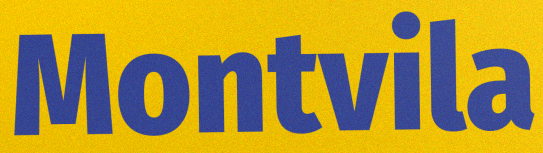
Montvila